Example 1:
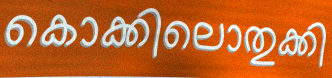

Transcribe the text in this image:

കൊക്കിലൊതുക്കി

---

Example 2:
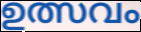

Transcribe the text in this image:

ഉത്സവം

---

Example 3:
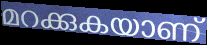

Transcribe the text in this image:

മറക്കുകയാണ്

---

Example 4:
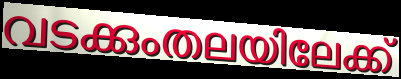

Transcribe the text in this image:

വടക്കുംതലയിലേക്ക്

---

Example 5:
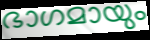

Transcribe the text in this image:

ഭാഗമായും